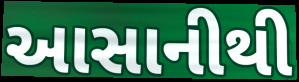
આસાનીથી